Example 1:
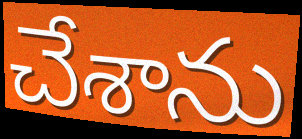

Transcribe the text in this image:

చేశాను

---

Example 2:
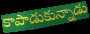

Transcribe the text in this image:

కాపాడుకున్నాడు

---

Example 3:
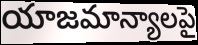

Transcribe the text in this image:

యాజమాన్యాలపై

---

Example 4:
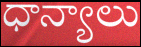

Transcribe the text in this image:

ధాన్యాలు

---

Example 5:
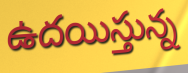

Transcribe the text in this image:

ఉదయిస్తున్న